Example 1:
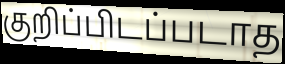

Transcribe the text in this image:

குறிப்பிடப்படாத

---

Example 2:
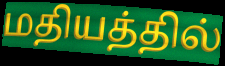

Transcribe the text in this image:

மதியத்தில்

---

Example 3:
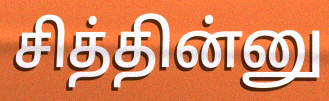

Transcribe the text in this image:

சித்தின்னு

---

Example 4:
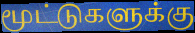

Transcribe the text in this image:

மூட்டுகளுக்கு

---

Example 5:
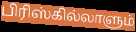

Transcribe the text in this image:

பிரிஸ்கில்லாளும்